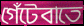
গেঁটেবাতে